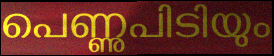
പെണ്ണുപിടിയും